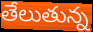
తేలుతున్న